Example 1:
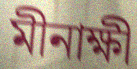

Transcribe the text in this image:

মীনাক্ষী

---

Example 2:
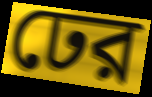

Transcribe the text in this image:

ঢের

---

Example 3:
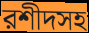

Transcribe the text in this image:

রশীদসহ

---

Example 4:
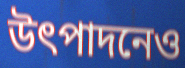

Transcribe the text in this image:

উৎপাদনেও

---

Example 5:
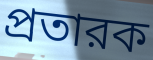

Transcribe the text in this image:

প্রতারক